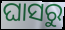
ଘାସରୁ